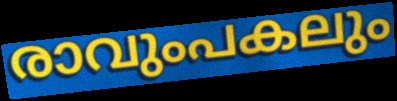
രാവുംപകലും